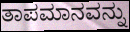
ತಾಪಮಾನವನ್ನು